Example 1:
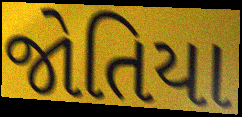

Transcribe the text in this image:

જોતિયા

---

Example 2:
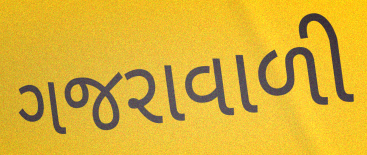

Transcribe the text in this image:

ગજરાવાળી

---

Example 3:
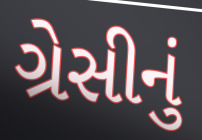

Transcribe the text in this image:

ગ્રેસીનું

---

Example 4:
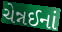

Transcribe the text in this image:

ચેન્નઈનાં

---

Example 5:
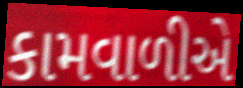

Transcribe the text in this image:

કામવાળીએ